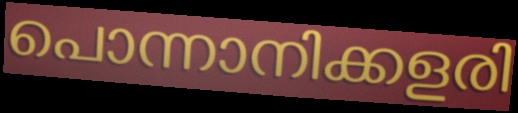
പൊന്നാനിക്കളരി